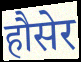
हौसेर